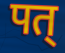
पत्